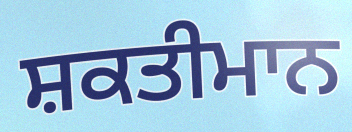
ਸ਼ਕਤੀਮਾਨ